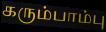
கரும்பாம்பு